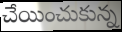
చేయించుకున్న